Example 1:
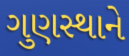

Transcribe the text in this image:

ગુણસ્થાને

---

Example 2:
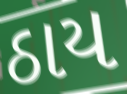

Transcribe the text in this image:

ઠાય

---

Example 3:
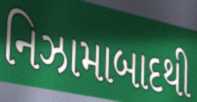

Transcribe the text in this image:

નિઝામાબાદથી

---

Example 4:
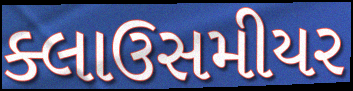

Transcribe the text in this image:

ક્લાઉસમીયર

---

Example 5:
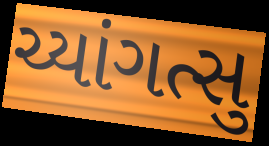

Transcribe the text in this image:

ચ્યાંગત્સુ